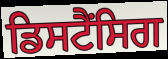
ਡਿਸਟੈਂਸਿਗ